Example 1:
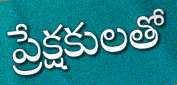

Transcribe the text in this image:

ప్రేక్షకులతో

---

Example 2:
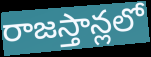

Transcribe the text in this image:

రాజస్తాన్లలో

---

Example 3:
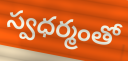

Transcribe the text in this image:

స్వధర్మంతో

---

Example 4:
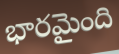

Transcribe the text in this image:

భారమైంది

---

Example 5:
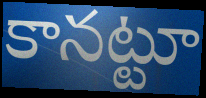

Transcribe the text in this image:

కానట్టూ